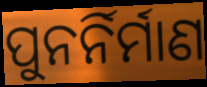
ପୁନର୍ନିର୍ମାଣ